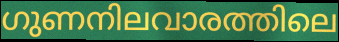
ഗുണനിലവാരത്തിലെ